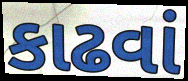
કાઢવાં